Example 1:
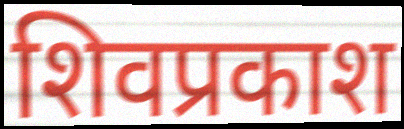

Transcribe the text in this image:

शिवप्रकाश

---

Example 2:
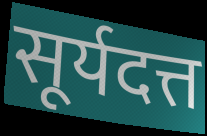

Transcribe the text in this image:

सूर्यदत्त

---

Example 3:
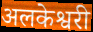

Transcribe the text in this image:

अलकेश्वरी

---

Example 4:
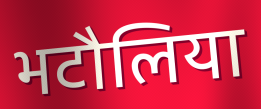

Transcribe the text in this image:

भटौलिया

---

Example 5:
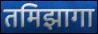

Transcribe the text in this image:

तमिझागा